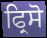
ਫ੍ਰਿਸੋ